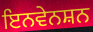
ਇਨਵੇਨਸ਼ਨ